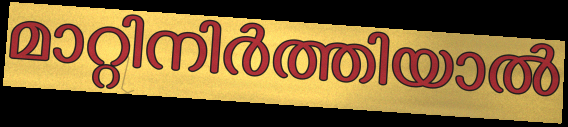
മാറ്റിനിർത്തിയാൽ